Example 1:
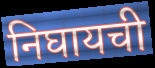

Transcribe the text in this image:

निघायची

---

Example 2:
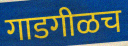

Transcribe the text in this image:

गाडगीळच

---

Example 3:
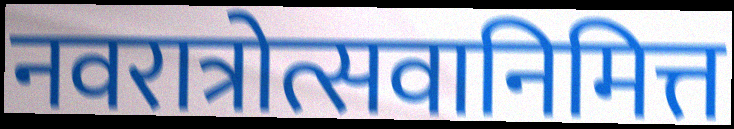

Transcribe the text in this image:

नवरात्रोत्सवानिमित्त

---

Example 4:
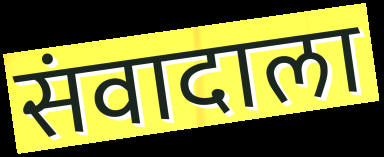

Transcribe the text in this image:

संवादाला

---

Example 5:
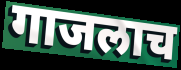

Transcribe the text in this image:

गाजलाच